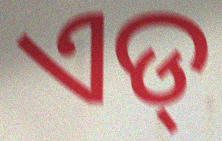
ଏଡ୍